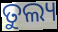
ତୁଲ୍ୟ